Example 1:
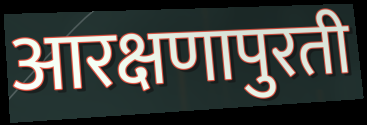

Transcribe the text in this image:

आरक्षणापुरती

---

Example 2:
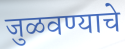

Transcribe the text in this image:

जुळवण्याचे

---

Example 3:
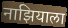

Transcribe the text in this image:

नाझियाला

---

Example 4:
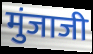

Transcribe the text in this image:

मुंजाजी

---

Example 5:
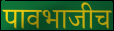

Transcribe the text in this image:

पावभाजीच